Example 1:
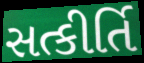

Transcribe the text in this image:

સત્કીર્તિ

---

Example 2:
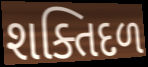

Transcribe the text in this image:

શક્તિદળ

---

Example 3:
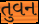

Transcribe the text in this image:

તુવન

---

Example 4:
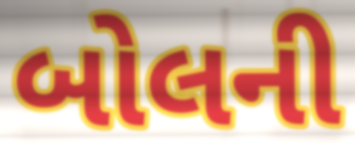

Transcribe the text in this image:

બોલની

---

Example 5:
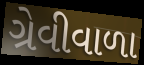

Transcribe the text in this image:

ગ્રેવીવાળા